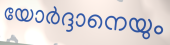
യോർദ്ദാനെയും